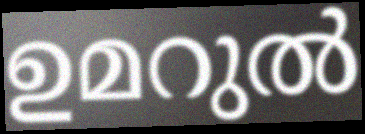
ഉമറുൽ